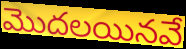
మొదలయినవే